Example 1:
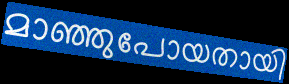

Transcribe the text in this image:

മാഞ്ഞുപോയതായി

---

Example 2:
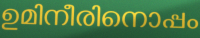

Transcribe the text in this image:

ഉമിനീരിനൊപ്പം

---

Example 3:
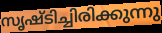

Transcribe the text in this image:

സൃഷ്ടിച്ചിരിക്കുന്നു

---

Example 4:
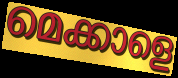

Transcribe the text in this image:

മെക്കാളെ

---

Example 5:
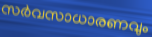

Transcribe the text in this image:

സർവസാധാരണവും